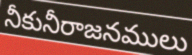
నీకునీరాజనములు